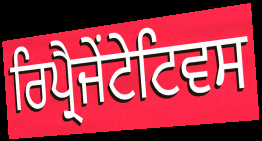
ਰਿਪ੍ਰੈਜੇਂਟੇਟਿਵਸ